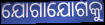
ଯୋଗାଯୋଗକୁ